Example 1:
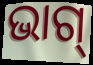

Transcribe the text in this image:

ଭାଗ୍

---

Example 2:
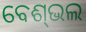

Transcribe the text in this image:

ବେଶ୍‌ଭଲ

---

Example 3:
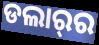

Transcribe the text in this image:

ଡଲାର୍‌ର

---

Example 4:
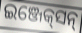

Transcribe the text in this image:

ଇଞ୍ଜେକ୍‍ସନ୍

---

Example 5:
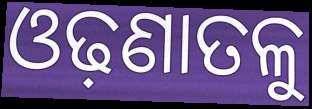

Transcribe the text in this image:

ଓଢ଼ଣାତଳୁ